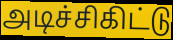
அடிச்சிகிட்டு